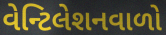
વેન્ટિલેશનવાળો